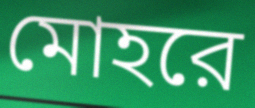
মোহরে